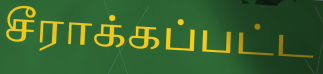
சீராக்கப்பட்ட